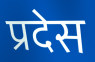
प्रदेस